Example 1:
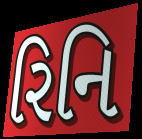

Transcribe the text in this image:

રિનિ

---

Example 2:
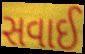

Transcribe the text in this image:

સવાઈ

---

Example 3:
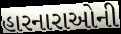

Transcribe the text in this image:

હારનારાઓની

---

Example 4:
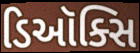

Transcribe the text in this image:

ડિઑક્સિ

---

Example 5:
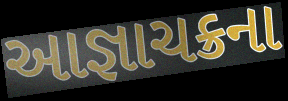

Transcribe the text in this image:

આજ્ઞાચક્રના